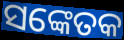
ସଙ୍କେତକ